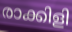
രാക്കിളി